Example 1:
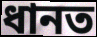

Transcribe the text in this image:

ধানত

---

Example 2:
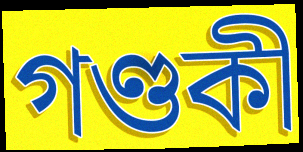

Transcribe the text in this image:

গণ্ডকী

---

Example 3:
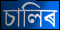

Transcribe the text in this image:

চালিৰ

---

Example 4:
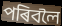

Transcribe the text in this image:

পৰিবলৈ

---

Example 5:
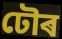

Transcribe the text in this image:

ঢৌৰ